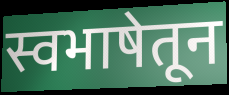
स्वभाषेतून